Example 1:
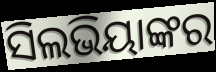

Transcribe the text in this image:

ସିଲଭିୟାଙ୍କର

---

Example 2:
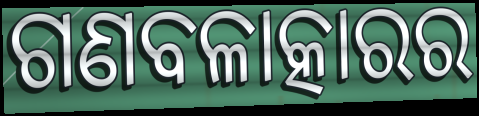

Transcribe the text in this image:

ଗଣବଳାତ୍କାରର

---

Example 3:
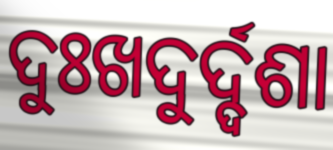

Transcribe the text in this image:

ଦୁଃଖଦୁର୍ଦ୍ଦଶା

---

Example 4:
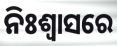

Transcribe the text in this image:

ନିଃଶ୍ଵାସରେ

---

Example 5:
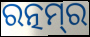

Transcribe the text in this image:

ରତ୍ନମ୍‌ର